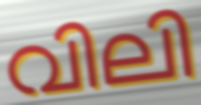
വിലി